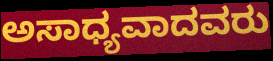
ಅಸಾಧ್ಯವಾದವರು